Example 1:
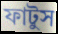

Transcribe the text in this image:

ফাটুস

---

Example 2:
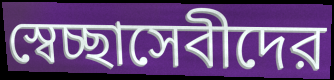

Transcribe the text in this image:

স্বেচ্ছাসেবীদের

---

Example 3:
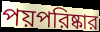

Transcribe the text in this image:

পয়পরিষ্কার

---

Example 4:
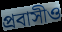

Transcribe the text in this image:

প্রবাসীও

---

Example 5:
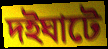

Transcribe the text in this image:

দইঘাটে